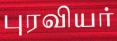
புரவியர்